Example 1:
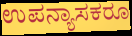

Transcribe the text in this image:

ಉಪನ್ಯಾಸಕರೂ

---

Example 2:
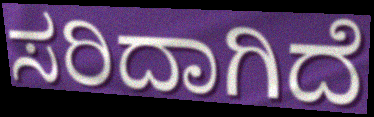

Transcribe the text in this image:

ಸರಿದಾಗಿದೆ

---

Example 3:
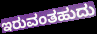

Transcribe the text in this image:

ಇರುವಂತಹುದು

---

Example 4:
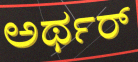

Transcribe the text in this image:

ಅರ್ಥರ್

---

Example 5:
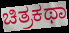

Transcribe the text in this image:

ಚಿತ್ರಕಥಾ